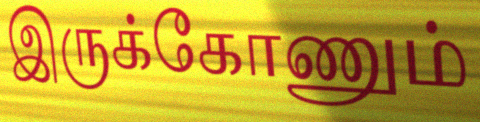
இருக்கோணும்